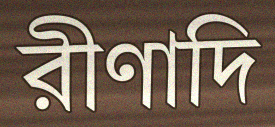
রীণাদি